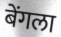
बेंगला